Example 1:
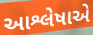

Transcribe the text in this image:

આશ્લેષાએ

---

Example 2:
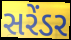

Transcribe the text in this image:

સરેંડર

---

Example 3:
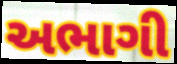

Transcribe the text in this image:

અભાગી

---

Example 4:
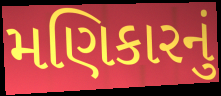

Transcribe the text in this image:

મણિકારનું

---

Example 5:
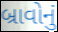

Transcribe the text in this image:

બ્રાવોનું